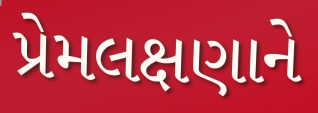
પ્રેમલક્ષણાને